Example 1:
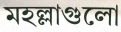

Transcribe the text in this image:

মহল্লাগুলো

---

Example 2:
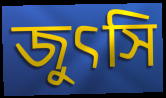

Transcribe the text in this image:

জুৎসি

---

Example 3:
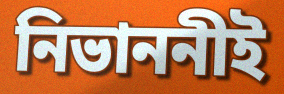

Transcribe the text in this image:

নিভাননীই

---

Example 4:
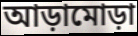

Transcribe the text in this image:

আড়ামোড়া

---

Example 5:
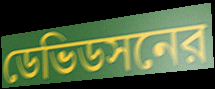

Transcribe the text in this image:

ডেভিডসনের